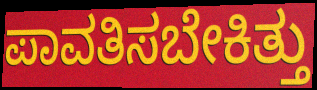
ಪಾವತಿಸಬೇಕಿತ್ತು